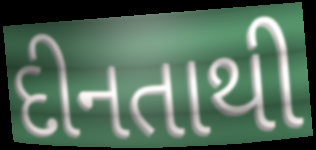
દીનતાથી